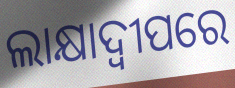
ଲାକ୍ଷାଦ୍ୱୀପରେ